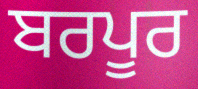
ਬਰਪੂਰ